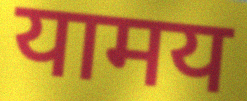
यामय